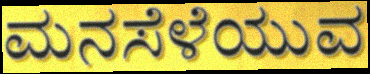
ಮನಸೆಳೆಯುವ